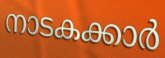
നാടകക്കാർ